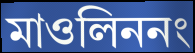
মাওলিননং